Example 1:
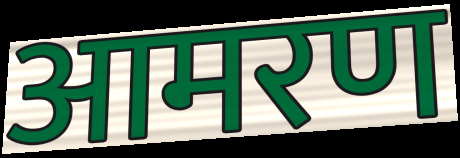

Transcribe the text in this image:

आमरण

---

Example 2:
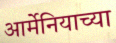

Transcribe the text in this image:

आर्मेनियाच्या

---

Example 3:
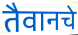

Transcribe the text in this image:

तैवानचे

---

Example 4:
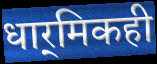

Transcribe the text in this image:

धार्मिकही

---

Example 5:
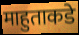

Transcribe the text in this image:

माहुताकडे